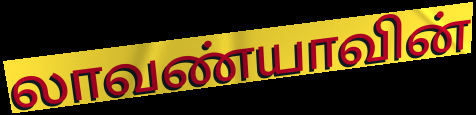
லாவண்யாவின்